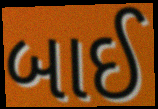
બાઈ